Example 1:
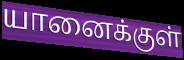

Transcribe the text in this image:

யானைக்குள்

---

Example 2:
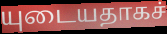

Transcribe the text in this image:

யுடையதாகச்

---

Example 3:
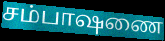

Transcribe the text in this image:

சம்பாஷணை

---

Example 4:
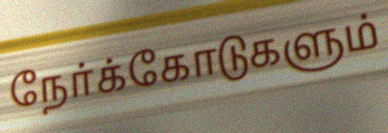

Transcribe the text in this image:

நேர்க்கோடுகளும்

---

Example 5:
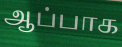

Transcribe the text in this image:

ஆப்பாக